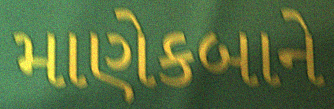
માણેકબાને